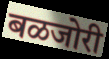
बळजोरी